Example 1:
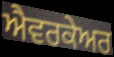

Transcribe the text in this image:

ਐਵਰਕੇਅਰ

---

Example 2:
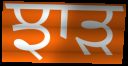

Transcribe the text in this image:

ਝਾੜ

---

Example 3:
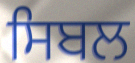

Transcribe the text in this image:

ਸਿਬਲ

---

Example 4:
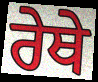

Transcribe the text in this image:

ਰੇਥੇ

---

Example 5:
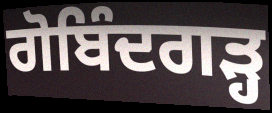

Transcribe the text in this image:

ਗੋਬਿੰਦਗੜ੍ਹ